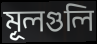
মূলগুলি